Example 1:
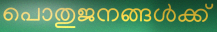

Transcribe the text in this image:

പൊതുജനങ്ങൾക്ക്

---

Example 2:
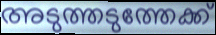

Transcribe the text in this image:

അടുത്തടുത്തേക്ക്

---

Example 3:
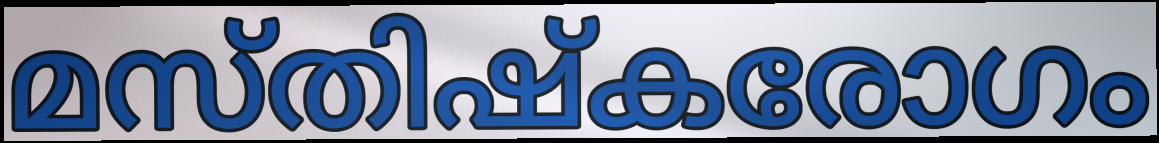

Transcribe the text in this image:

മസ്തിഷ്കരോഗം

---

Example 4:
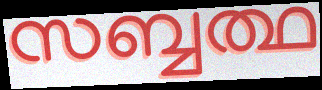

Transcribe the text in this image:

സബ്ബത്ഥ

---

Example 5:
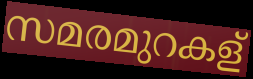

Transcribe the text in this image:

സമരമുറകള്